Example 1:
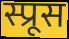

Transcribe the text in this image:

स्प्रूस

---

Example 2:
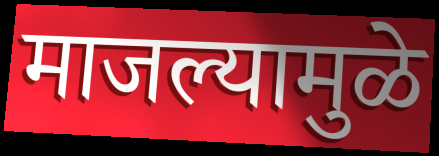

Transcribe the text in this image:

माजल्यामुळे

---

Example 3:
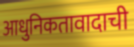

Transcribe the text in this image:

आधुनिकतावादाची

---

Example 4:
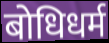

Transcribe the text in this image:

बोधिधर्म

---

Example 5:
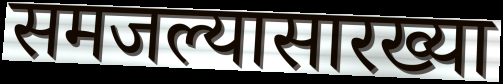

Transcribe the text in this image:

समजल्यासारख्या